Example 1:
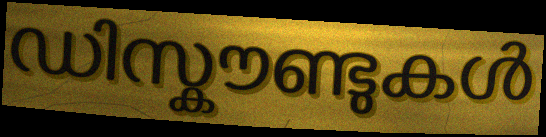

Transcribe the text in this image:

ഡിസ്കൗണ്ടുകൾ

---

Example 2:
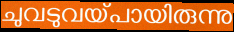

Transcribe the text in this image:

ചുവടുവയ്പായിരുന്നു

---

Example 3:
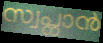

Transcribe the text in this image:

സ്വപ്നാൻ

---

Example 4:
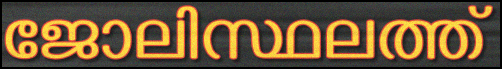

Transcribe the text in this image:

ജോലിസ്ഥലത്ത്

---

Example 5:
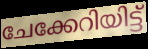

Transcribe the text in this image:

ചേക്കേറിയിട്ട്